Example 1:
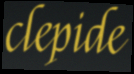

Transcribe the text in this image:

clepide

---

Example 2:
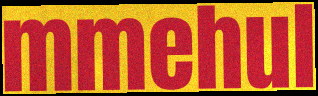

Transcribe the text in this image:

mmehul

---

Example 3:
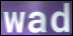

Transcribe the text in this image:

wad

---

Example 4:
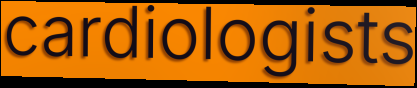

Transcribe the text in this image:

cardiologists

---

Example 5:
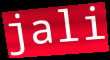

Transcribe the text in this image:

jali